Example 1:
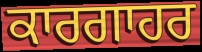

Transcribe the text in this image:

ਕਾਰਗਾਹਰ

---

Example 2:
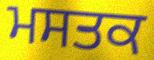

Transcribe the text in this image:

ਮਸਤਕ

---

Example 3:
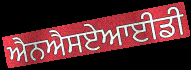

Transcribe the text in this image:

ਐਨਐਸਏਆਈਡੀ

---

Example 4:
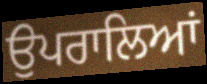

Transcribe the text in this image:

ਉਪਰਾਲਿਆਂ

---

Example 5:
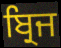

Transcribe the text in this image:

ਬ੍ਰਿਜ